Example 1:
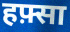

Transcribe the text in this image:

हफ़्सा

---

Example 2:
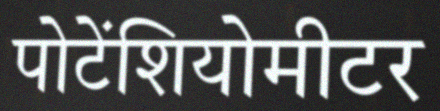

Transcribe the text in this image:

पोटेंशियोमीटर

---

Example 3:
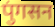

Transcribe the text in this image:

पुंगसन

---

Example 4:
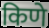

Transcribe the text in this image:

किणे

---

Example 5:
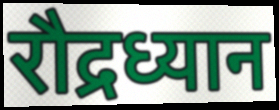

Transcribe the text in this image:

रौद्रध्यान